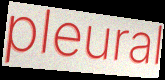
pleural